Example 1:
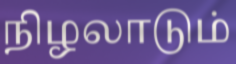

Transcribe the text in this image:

நிழலாடும்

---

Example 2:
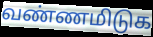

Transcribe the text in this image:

வண்ணமிடுக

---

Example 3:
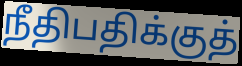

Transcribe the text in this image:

நீதிபதிக்குத்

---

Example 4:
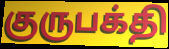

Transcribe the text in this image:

குருபக்தி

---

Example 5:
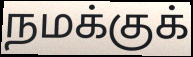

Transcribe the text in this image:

நமக்குக்